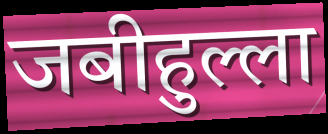
जबीहुल्ला